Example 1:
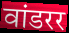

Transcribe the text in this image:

वांडरर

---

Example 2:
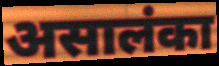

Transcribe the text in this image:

असालंका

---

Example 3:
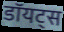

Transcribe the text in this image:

डॉयट्स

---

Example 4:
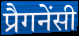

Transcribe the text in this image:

प्रैगनेंसी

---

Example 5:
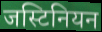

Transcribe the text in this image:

जस्टिनियन